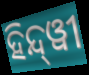
ହିନ୍ଦ୍‍ୱୀ